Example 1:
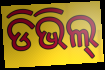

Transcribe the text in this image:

ଡିଭିଲ୍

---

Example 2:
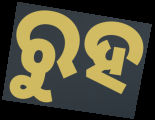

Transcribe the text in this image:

ରୁହ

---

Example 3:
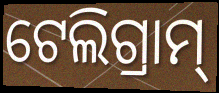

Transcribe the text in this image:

ଟେଲିଗ୍ରାମ୍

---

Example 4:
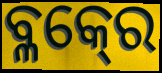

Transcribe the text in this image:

ବ୍ଳକ୍‍ରେ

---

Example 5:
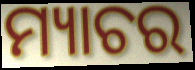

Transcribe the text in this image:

ମ୍ୟାଚର